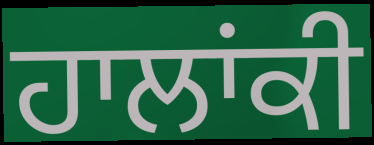
ਹਾਲਾਂਕੀ